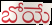
బోయే